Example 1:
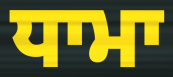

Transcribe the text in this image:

ਧਾਮਾ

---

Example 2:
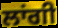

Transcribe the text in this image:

ਲਾਂਗੀ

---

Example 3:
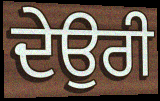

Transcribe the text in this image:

ਦੇਉਰੀ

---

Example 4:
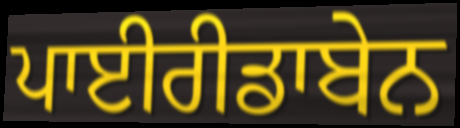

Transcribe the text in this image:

ਪਾਈਰੀਡਾਬੇਨ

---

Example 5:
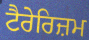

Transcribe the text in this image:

ਟੈਰੇਰਿਜ਼ਮ